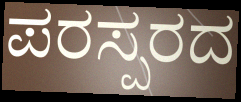
ಪರಸ್ಪರದ